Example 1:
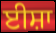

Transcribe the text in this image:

ਈਸ਼ਾ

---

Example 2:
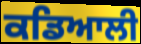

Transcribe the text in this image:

ਕਡਿਆਲੀ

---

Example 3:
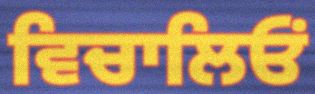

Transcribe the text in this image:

ਵਿਚਾਲਿਓਂ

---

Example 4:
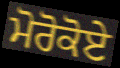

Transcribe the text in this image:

ਮੋਰੋਕੋਏ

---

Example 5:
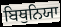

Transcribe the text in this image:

ਬਿਥੁਨਿਯਾ